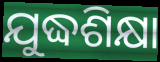
ଯୁଦ୍ଧଶିକ୍ଷା